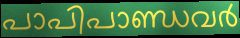
പാപിപാണ്ഡവർ